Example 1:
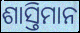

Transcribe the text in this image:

ଶାସ୍ତିମାନ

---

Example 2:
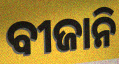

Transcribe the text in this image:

ବୀଜାନି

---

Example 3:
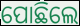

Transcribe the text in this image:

ପୋଛିଲେ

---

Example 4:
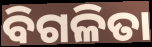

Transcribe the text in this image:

ବିଗଳିତା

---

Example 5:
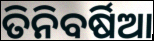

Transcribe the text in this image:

ତିନିବର୍ଷିଆ